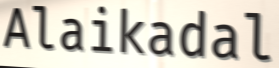
Alaikadal